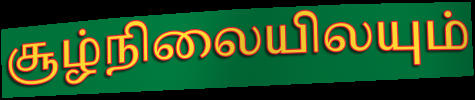
சூழ்நிலையிலயும்